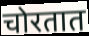
चोरतात